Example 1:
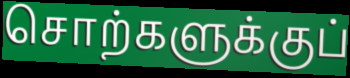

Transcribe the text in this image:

சொற்களுக்குப்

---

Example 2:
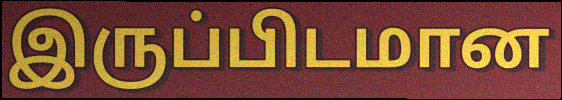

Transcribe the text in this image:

இருப்பிடமான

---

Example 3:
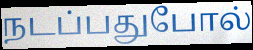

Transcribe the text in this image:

நடப்பதுபோல்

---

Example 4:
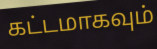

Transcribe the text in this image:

கட்டமாகவும்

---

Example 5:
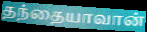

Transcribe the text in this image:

தந்தையாவான்